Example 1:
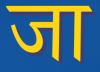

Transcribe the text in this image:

जा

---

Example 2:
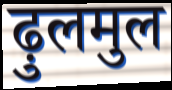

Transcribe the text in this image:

ढ़ुलमुल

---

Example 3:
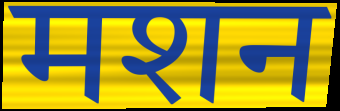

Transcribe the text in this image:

मशन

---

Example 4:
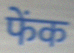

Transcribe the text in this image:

फेंक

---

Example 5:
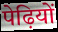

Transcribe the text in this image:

पेढ़ियों